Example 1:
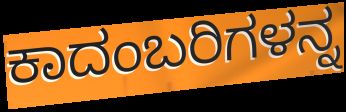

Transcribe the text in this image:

ಕಾದಂಬರಿಗಳನ್ನ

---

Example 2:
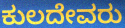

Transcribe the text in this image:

ಕುಲದೇವರು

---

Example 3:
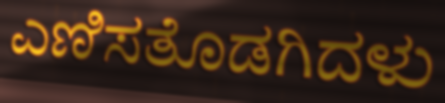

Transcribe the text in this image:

ಎಣಿಸತೊಡಗಿದಳು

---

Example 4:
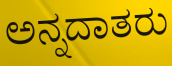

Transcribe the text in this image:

ಅನ್ನದಾತರು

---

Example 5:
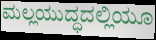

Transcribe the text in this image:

ಮಲ್ಲಯುದ್ಧದಲ್ಲಿಯೂ